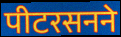
पीटरसनने